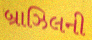
બ્રાઝિલની